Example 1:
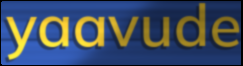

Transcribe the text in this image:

yaavude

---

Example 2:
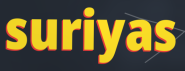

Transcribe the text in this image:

suriyas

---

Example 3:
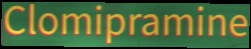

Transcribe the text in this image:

Clomipramine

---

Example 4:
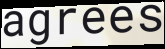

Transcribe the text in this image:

agrees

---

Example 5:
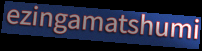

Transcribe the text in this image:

ezingamatshumi